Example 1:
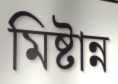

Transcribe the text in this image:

মিষ্টান্ন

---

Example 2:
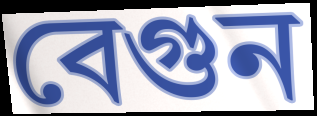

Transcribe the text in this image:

বেগুন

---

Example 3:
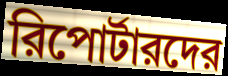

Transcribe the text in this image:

রিপোর্টারদের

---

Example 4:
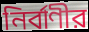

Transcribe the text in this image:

নির্বাণীর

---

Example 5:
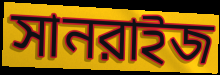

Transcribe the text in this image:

সানরাইজ